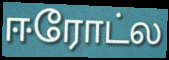
ஈரோட்ல